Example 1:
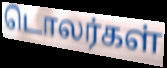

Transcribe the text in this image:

டொலர்கள்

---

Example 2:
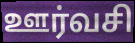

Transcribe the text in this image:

ஊர்வசி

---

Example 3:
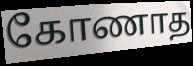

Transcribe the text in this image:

கோணாத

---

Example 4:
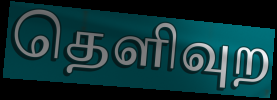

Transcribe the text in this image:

தெளிவுற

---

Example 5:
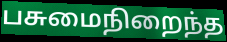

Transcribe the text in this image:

பசுமைநிறைந்த